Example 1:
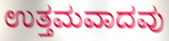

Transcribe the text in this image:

ಉತ್ತಮವಾದವು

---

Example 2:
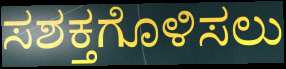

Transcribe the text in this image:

ಸಶಕ್ತಗೊಳಿಸಲು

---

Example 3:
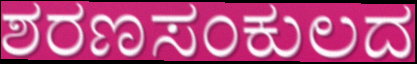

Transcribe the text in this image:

ಶರಣಸಂಕುಲದ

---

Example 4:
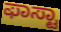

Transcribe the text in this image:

ಫಾಸ್ಟಾ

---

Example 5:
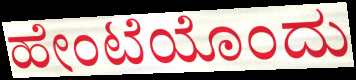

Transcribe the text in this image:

ಹೇಂಟೆಯೊಂದು